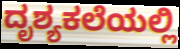
ದೃಶ್ಯಕಲೆಯಲ್ಲಿ